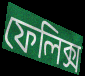
ফেলিক্স